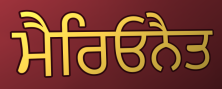
ਮੈਰਿਓਨੈਤ